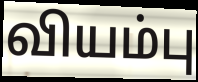
வியம்பு